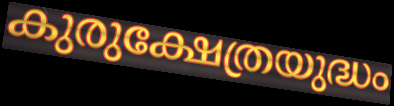
കുരുക്ഷേത്രയുദ്ധം